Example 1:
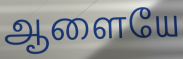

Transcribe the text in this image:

ஆளையே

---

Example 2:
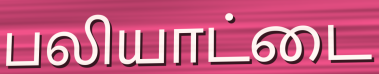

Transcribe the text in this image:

பலியாட்டை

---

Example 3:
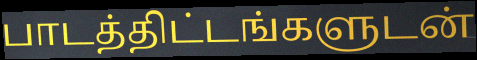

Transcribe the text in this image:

பாடத்திட்டங்களுடன்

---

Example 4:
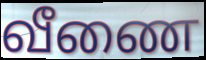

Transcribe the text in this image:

வீணை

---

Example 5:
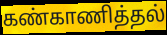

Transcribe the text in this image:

கண்காணித்தல்